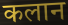
कलान